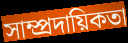
সাম্প্ৰদায়িকতা